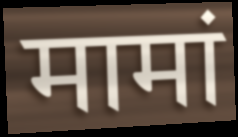
मामां